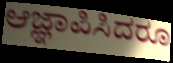
ಆಜ್ಞಾಪಿಸಿದರೂ